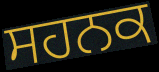
ਸਹਨਕ